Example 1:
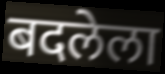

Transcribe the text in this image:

बदलेला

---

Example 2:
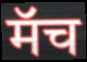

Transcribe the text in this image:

मॅच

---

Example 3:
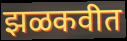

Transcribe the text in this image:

झळकवीत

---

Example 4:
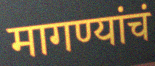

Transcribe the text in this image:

मागण्यांचं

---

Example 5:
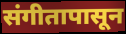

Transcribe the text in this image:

संगीतापासून